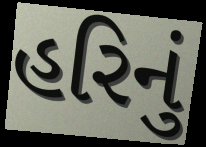
હરિનું